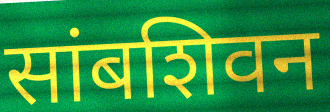
सांबशिवन